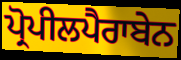
ਪ੍ਰੋਪੀਲਪੈਰਾਬੇਨ